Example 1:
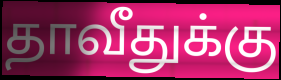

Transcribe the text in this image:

தாவீதுக்கு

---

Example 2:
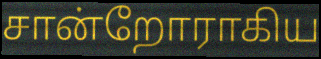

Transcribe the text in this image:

சான்றோராகிய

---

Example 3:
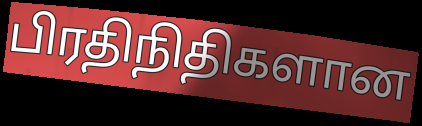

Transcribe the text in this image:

பிரதிநிதிகளான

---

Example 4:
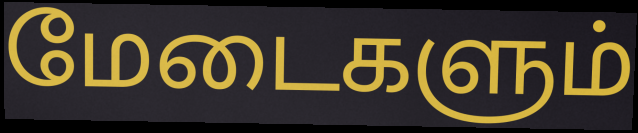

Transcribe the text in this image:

மேடைகளும்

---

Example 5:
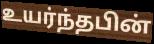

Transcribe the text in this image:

உயர்ந்தபின்